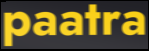
paatra